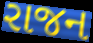
રાજન